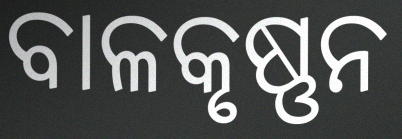
ବାଳକୃଷ୍ଣନ